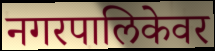
नगरपालिकेवर